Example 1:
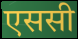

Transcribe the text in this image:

एससी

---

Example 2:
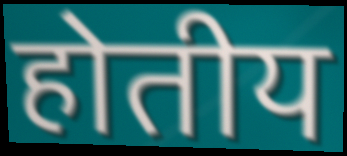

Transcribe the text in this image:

होतीय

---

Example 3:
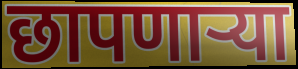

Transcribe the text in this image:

छापणाऱ्या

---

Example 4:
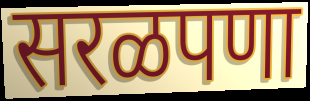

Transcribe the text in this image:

सरळपणा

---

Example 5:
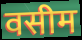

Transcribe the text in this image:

वसीम